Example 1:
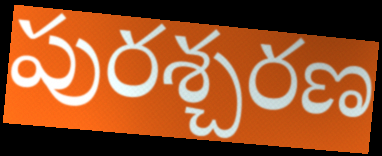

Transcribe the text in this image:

పురశ్చరణ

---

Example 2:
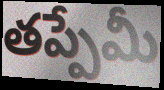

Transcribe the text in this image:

తప్పేమీ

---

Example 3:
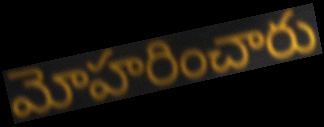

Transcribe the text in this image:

మోహరించారు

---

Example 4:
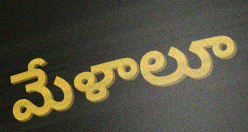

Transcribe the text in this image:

మేళాలూ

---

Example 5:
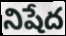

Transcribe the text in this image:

నిషేద